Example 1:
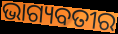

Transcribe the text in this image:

ଭାଗ୍ୟବତୀର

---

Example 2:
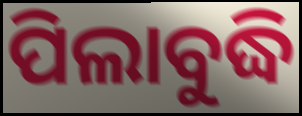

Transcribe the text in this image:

ପିଲାବୁଦ୍ଧି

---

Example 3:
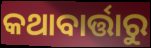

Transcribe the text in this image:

କଥାବାର୍ତ୍ତାରୁ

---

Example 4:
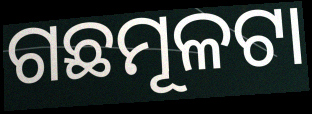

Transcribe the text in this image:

ଗଛମୂଳଟା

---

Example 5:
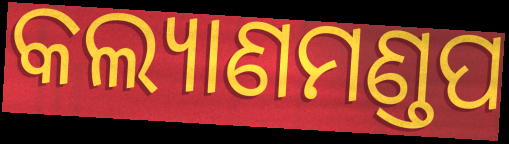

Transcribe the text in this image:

କଲ୍ୟାଣମଣ୍ଡପ